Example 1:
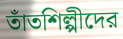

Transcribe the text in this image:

তাঁতশিল্পীদের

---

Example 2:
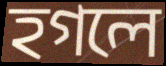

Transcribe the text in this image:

হগলে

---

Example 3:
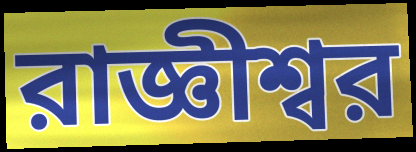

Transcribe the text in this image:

রাজ্ঞীশ্বর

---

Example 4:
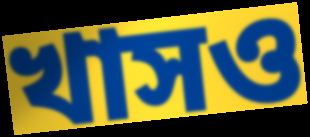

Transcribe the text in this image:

খাসও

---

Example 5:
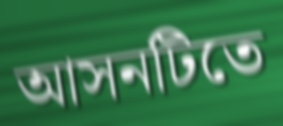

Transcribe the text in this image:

আসনটিতে